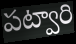
పట్వారి